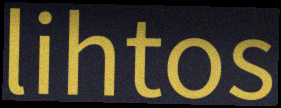
lihtos